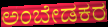
ಅಂಬೇಡಕರ